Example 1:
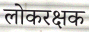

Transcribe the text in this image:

लोकरक्षक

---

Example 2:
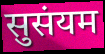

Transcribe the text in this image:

सुसंयम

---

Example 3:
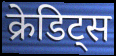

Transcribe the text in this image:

क्रेडिट्स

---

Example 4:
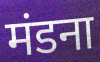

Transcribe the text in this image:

मंडना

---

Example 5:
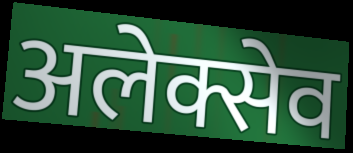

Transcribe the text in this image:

अलेक्सेव